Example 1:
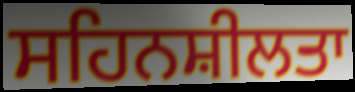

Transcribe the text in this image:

ਸਹਿਨਸ਼ੀਲਤਾ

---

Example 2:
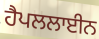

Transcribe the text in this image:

ਹੈਪਲਲਾਈਨ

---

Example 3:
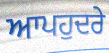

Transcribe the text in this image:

ਆਪਹੁਦਰੇ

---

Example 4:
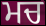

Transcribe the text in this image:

ਮਚ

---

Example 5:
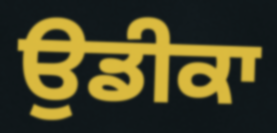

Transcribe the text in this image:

ਉਡੀਕਾ